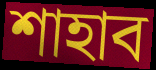
শাহাব